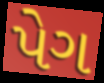
પેગ